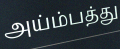
அய்ம்பத்து